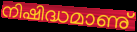
നിഷിദ്ധമാണു്